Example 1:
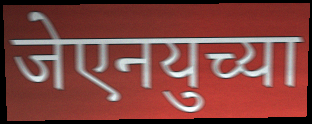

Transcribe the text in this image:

जेएनयुच्या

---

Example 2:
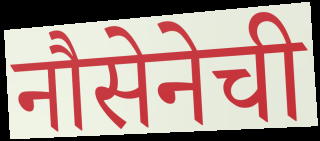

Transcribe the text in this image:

नौसेनेची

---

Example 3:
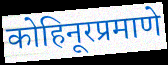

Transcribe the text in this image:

कोहिनूरप्रमाणे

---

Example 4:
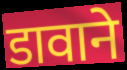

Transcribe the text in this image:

डावाने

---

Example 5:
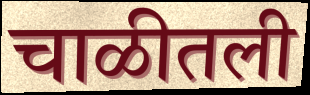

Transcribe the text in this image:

चाळीतली